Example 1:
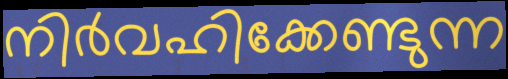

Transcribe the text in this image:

നിർവഹിക്കേണ്ടുന്ന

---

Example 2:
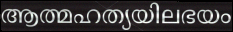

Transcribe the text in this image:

ആത്മഹത്യയിലഭയം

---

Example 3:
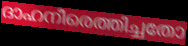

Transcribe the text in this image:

ദാഹനീരെത്തിച്ചതോ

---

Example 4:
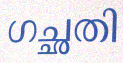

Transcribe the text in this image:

ഗച്ഛതി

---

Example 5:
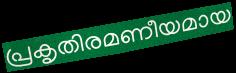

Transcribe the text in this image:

പ്രകൃതിരമണീയമായ